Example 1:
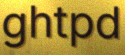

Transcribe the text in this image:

ghtpd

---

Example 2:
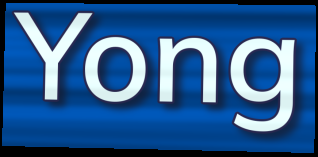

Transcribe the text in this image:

Yong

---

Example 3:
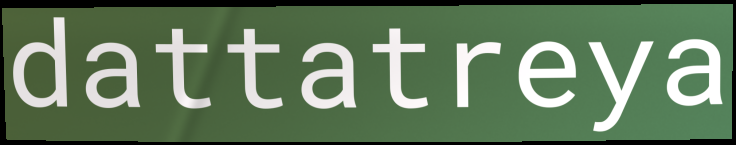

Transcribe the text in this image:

dattatreya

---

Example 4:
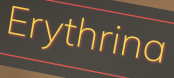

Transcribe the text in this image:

Erythrina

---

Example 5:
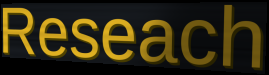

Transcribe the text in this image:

Reseach